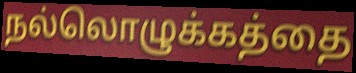
நல்லொழுக்கத்தை